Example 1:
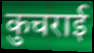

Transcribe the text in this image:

कुचराई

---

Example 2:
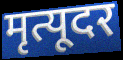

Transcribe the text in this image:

मृत्यूदर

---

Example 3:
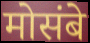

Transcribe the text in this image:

मोसंबे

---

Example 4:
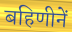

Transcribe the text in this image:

बहिणीनें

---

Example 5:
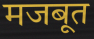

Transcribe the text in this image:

मजबूत